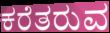
ಕರೆತರುವ